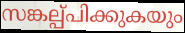
സങ്കല്പ്പിക്കുകയും